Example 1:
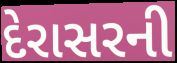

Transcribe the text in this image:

દેરાસરની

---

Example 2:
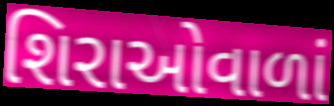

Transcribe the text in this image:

શિરાઓવાળાં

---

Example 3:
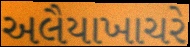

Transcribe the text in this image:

અલૈયાખાચરે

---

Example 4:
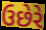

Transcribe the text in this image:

ઉછેરે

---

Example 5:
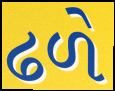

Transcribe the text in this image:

ઢળે